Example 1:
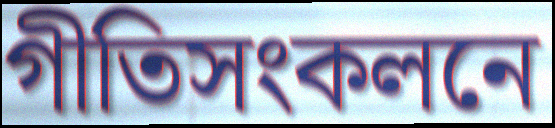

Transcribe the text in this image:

গীতিসংকলনে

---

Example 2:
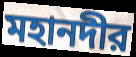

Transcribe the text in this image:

মহানদীর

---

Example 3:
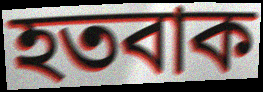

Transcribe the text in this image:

হতবাক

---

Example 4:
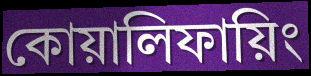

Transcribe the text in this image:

কোয়ালিফায়িং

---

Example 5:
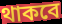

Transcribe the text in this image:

থাকবে